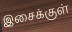
இசைக்குள்